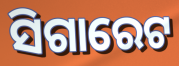
ସିଗାରେଟ